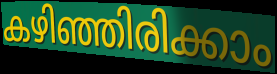
കഴിഞ്ഞിരിക്കാം